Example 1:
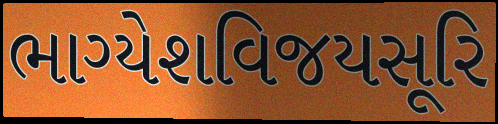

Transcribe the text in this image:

ભાગ્યેશવિજયસૂરિ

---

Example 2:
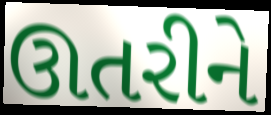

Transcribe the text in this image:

ઊતરીને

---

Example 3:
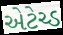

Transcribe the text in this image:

એટેચ્ડ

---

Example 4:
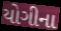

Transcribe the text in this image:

યોગીના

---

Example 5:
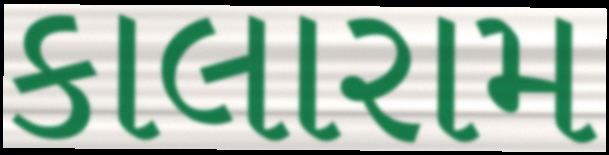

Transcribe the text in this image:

કાલારામ